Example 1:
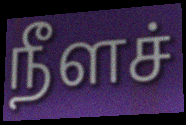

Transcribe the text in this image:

நீளச்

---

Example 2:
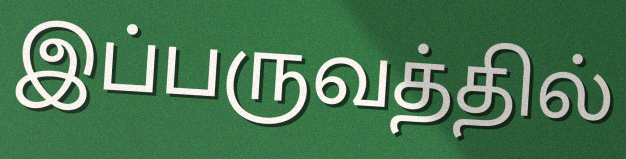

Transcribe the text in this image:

இப்பருவத்தில்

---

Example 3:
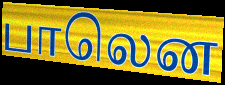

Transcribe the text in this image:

பாலென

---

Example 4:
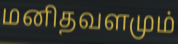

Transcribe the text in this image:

மனிதவளமும்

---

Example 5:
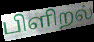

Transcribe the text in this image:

பிளிறல்